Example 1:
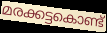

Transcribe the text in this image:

മരക്കട്ടകൊണ്ട്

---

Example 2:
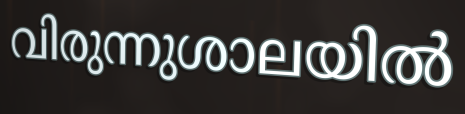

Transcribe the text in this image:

വിരുന്നുശാലയിൽ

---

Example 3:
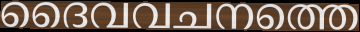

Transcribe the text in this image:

ദൈവവചനത്തെ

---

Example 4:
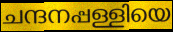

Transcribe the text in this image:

ചന്ദനപ്പള്ളിയെ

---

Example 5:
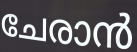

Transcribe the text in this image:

ചേരാൻ